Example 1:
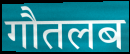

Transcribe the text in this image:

गौतलब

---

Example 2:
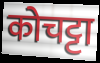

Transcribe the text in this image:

कोचट्टा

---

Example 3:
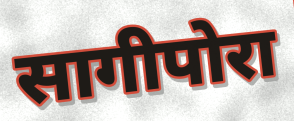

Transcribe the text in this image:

सागीपोरा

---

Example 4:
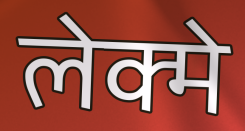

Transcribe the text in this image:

लेक्मे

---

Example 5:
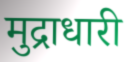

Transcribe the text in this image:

मुद्राधारी